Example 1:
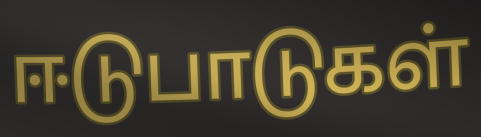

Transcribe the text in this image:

ஈடுபாடுகள்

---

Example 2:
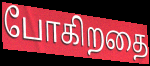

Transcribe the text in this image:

போகிறதை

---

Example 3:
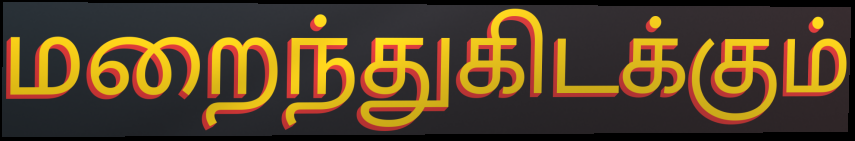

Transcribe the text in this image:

மறைந்துகிடக்கும்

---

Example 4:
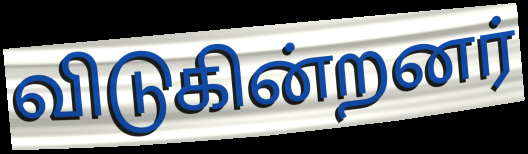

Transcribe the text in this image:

விடுகின்றனர்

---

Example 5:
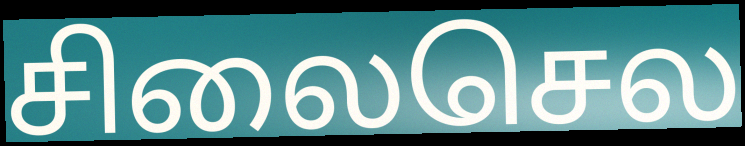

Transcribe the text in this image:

சிலைசெல